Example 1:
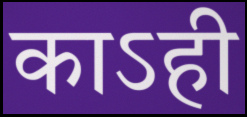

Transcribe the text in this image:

काऽही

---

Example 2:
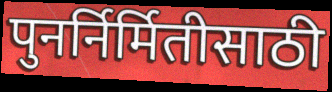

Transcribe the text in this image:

पुनर्निर्मितीसाठी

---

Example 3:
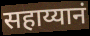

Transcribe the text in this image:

सहाय्यानं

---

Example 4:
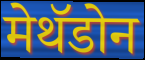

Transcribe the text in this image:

मेथॅडोन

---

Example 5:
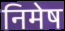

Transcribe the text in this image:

निमेष